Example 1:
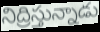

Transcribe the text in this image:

నిద్రిస్తున్నాడు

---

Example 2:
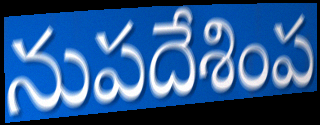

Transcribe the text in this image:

నుపదేశింప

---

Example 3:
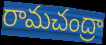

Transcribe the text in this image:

రామచంద్రా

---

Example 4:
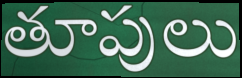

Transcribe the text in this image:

తూపులు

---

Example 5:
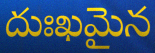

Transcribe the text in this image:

దుఃఖమైన